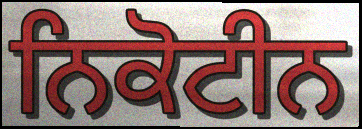
ਨਿਕੋਟੀਨ